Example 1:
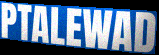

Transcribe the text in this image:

PTALEWAD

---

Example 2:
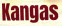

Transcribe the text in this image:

Kangas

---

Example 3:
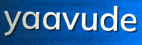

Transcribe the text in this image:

yaavude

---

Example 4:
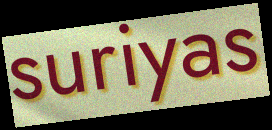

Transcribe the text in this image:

suriyas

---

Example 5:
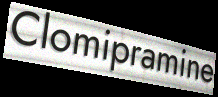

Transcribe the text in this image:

Clomipramine